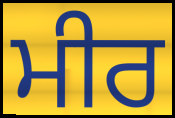
ਮੀਰ